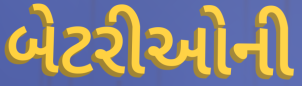
બેટરીઓની